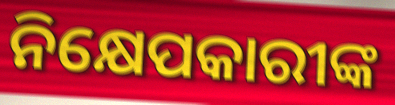
ନିକ୍ଷେପକାରୀଙ୍କ